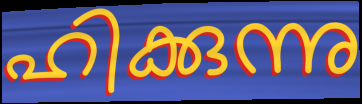
ഹിക്കുന്നു